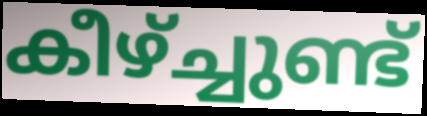
കീഴ്ച്ചുണ്ട്